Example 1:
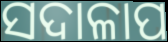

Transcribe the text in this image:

ସଦାଳାପ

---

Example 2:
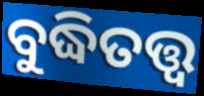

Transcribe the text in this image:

ବୁଦ୍ଧିତତ୍ତ୍ବ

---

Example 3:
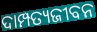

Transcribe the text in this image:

ଦାମ୍ପତ୍ୟଜୀବନ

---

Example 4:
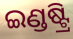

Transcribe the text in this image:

ଇଣ୍ଡଷ୍ଟ୍ରି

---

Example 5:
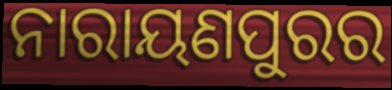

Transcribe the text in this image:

ନାରାୟଣପୁରର